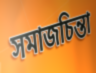
সমাজচিন্তা